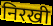
निरखी